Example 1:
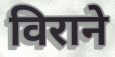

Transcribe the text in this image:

विराने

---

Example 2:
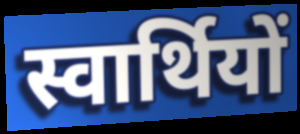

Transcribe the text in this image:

स्वार्थियों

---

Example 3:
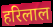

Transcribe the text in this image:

हरिलाल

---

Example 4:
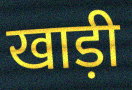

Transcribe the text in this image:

खाड़ी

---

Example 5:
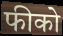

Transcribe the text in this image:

फीको